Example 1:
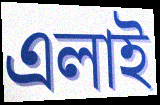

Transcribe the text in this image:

এলাই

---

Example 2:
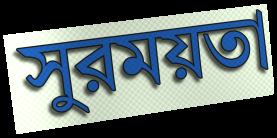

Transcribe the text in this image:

সুরময়তা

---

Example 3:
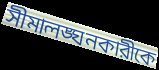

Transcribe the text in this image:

সীমালঙ্ঘনকারীকে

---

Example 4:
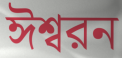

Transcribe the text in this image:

ঈশ্বরন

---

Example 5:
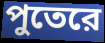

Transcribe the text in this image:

পুতেরে